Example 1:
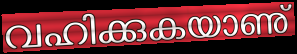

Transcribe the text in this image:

വഹിക്കുകയാണു്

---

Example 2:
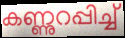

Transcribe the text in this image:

കണ്ണുറപ്പിച്ച്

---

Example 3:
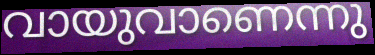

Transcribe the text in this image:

വായുവാണെന്നു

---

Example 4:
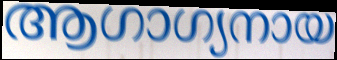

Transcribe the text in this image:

ആഗാഗ്യനായ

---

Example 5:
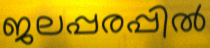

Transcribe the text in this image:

ജലപ്പരപ്പിൽ